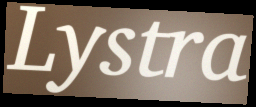
Lystra